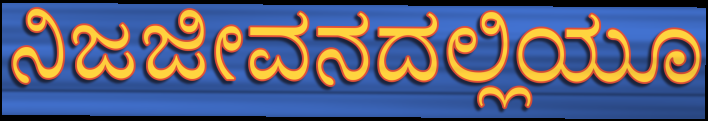
ನಿಜಜೀವನದಲ್ಲಿಯೂ